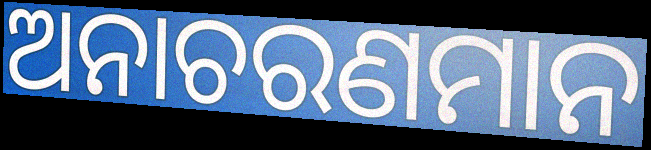
ଅନାଚରଣମାନ